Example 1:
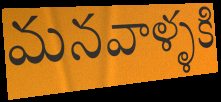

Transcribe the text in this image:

మనవాళ్ళకి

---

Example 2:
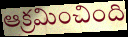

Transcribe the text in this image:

ఆక్రమించింది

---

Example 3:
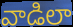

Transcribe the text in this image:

వాడిలా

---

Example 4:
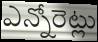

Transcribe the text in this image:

ఎన్నోరెట్లు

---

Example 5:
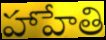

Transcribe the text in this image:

హాహేతి